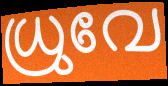
ധ്രുവേ